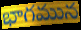
భాగమున